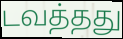
டவத்தது